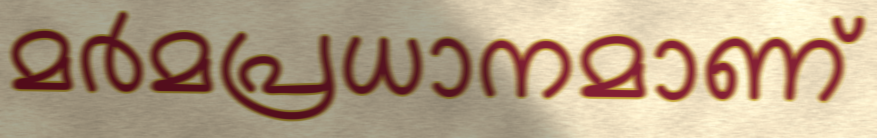
മർമപ്രധാനമാണ്